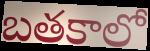
బతకాలో